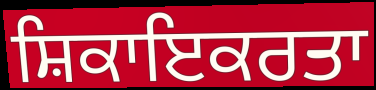
ਸ਼ਿਕਾਇਕਰਤਾ